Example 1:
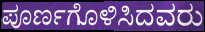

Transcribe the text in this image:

ಪೂರ್ಣಗೊಳಿಸಿದವರು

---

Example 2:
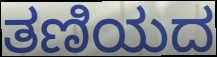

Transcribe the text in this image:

ತಣಿಯದ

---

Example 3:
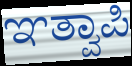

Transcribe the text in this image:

ಞತ್ವಾಪಿ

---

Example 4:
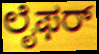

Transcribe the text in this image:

ಲೈಫರ್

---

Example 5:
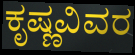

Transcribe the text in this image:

ಕೃಷ್ಣವಿವರ